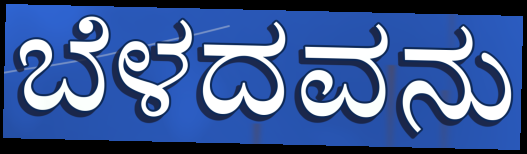
ಬೆಳದವನು